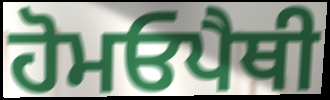
ਹੋਮਓਪੈਥੀ